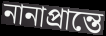
নানাপ্রান্তে